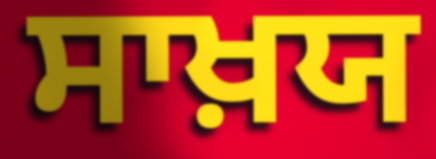
ਸਾਖ਼ਯ